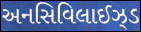
અનસિવિલાઈઝ્ડ